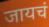
जायचं